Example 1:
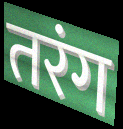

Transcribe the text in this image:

तरंग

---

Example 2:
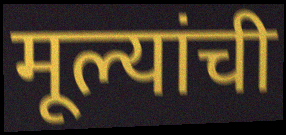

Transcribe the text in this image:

मूल्यांची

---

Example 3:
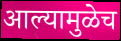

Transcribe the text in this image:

आल्यामुळेच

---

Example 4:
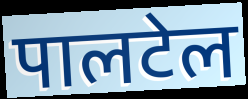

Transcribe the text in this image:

पालटेल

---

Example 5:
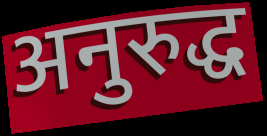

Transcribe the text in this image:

अनुरुद्ध